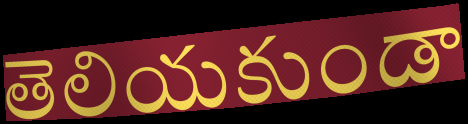
తెలియకుండా